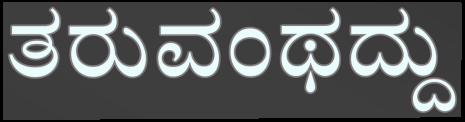
ತರುವಂಥದ್ದು